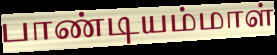
பாண்டியம்மாள்